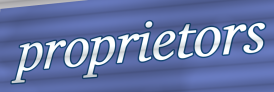
proprietors